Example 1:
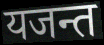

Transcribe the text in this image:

यजन्त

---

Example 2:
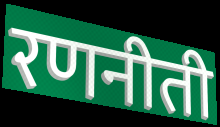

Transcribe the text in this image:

रणनीती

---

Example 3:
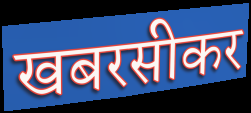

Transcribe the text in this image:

खबरसीकर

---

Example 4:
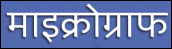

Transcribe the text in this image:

माइक्रोग्राफ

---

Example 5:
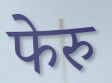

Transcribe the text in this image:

फेरु